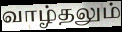
வாழ்தலும்